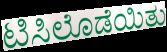
ಟಿಸಿಲೊಡೆಯಿತು